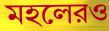
মহলেরও